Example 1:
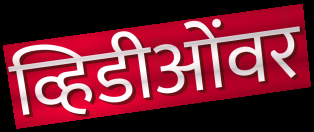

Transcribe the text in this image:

व्हिडीओंवर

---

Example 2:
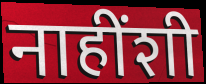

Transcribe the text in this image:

नाहींशी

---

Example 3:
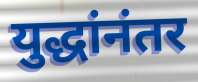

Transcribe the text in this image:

युद्धांनंतर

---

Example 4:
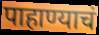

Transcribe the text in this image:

पाहाण्याचं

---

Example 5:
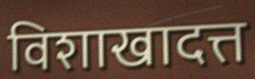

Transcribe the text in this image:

विशाखादत्त